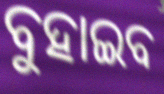
ବୁହାଇବ